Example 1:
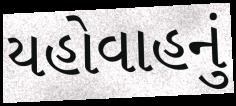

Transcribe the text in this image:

યહોવાહનું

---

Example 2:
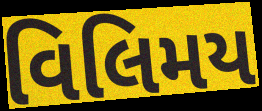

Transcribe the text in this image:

વિલિમય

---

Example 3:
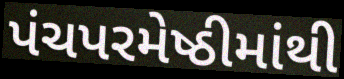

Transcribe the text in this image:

પંચપરમેષ્ઠીમાંથી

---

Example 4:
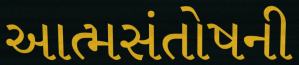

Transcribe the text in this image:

આત્મસંતોષની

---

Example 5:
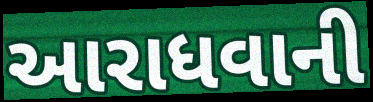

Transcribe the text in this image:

આરાધવાની